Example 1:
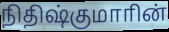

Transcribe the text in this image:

நிதிஷ்குமாரின்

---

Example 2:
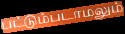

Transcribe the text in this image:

பட்டும்படாமலும்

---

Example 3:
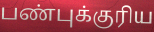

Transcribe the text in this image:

பண்புக்குரிய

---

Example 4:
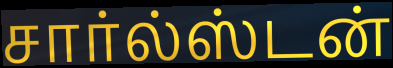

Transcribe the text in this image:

சார்ல்ஸ்டன்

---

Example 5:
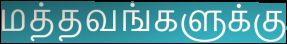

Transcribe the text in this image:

மத்தவங்களுக்கு